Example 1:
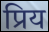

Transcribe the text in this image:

प्रिय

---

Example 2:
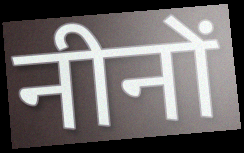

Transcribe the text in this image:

नीनों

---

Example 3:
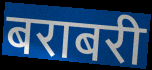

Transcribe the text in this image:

बराबरी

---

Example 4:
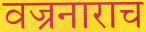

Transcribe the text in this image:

वज्रनाराच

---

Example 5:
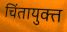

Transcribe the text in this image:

चिंतायुक्त